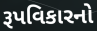
રૂપવિકારનો